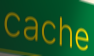
cache